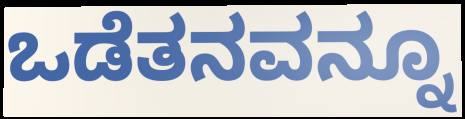
ಒಡೆತನವನ್ನೂ